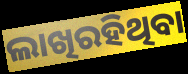
ଲାଖିରହିଥିବା